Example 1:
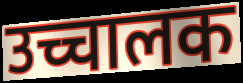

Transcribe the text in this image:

उच्चालक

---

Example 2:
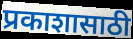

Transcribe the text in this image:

प्रकाशासाठी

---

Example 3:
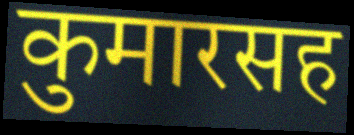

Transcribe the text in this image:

कुमारसह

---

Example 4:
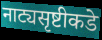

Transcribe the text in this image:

नाट्यसृष्टीकडे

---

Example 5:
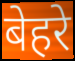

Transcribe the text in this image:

बेहरे